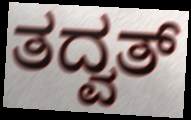
ತದ್ವತ್